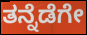
ತನ್ನೆಡೆಗೇ